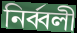
নিৰ্ব্বলী